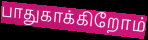
பாதுகாக்கிறோம்